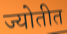
ज्योतीत